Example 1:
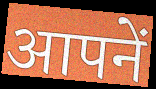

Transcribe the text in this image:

आपनें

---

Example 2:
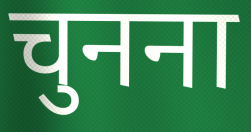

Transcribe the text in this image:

चुनना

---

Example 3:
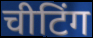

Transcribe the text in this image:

चीटिंग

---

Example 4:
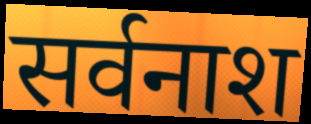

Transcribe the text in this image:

सर्वनाश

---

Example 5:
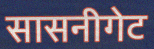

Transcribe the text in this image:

सासनीगेट